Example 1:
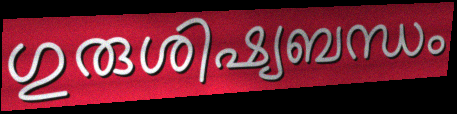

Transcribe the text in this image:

ഗുരുശിഷ്യബന്ധം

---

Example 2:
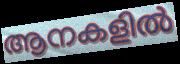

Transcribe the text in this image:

ആനകളിൽ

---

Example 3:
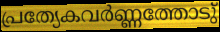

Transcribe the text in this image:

പ്രത്യേകവർണ്ണത്തോടു്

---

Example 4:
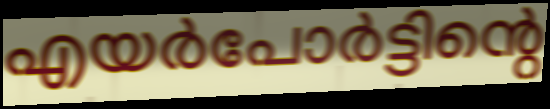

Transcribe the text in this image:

എയർപോർട്ടിന്റെ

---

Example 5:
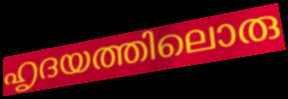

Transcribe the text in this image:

ഹൃദയത്തിലൊരു